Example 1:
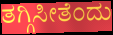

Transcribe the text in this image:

ತಗ್ಗಿಸೀತೆಂದು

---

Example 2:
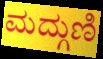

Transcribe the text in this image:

ಮದ್ಗುಣಿ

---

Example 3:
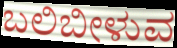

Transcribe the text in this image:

ಬಲಿಬೀಳುವ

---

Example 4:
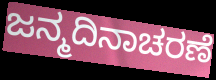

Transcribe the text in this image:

ಜನ್ಮದಿನಾಚರಣೆ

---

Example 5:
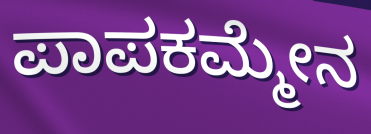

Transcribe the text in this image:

ಪಾಪಕಮ್ಮೇನ